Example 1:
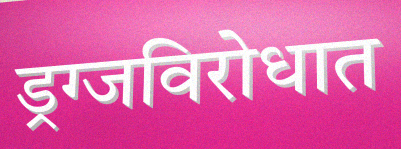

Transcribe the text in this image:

ड्रग्जविरोधात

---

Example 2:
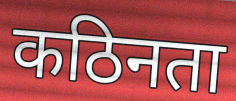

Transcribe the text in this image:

कठिनता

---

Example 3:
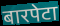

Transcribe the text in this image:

बारपेटा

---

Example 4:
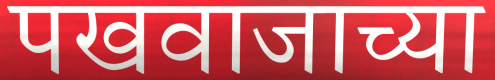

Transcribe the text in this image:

पखवाजाच्या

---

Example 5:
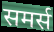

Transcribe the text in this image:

समर्स